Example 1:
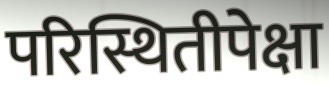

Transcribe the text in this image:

परिस्थितीपेक्षा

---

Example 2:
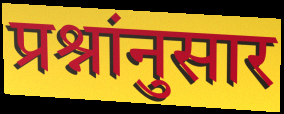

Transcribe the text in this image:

प्रश्नांनुसार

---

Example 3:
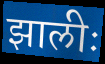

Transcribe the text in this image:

झालीः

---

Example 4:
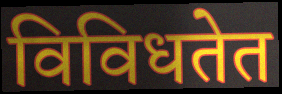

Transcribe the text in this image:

विविधतेत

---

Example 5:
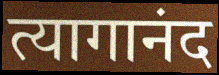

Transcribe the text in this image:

त्यागानंद